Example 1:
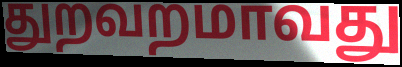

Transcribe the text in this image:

துறவறமாவது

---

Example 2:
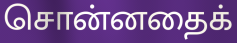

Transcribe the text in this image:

சொன்னதைக்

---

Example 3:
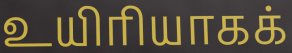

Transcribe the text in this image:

உயிரியாகக்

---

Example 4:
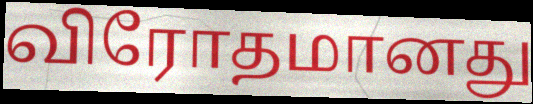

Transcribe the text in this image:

விரோதமானது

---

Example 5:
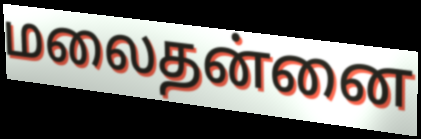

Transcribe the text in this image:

மலைதன்னை